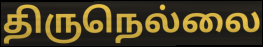
திருநெல்லை